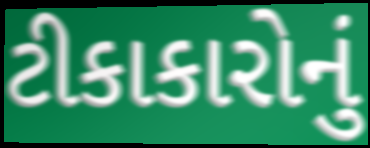
ટીકાકારોનું